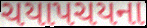
ચયાપચયના